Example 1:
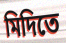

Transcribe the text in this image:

মিদিতে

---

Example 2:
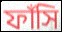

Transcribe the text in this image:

ফাঁসি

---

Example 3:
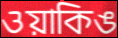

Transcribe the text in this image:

ওয়াকিঙ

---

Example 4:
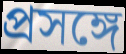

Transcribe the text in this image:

প্রসঙ্গে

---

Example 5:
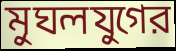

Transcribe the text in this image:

মুঘলযুগের